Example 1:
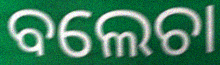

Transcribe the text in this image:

ବଲେଚା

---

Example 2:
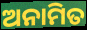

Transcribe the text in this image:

ଅନାମିତ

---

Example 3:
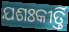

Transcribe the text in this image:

ଯଶଃକୀର୍ତ୍ତି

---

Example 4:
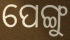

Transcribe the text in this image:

ପେଙ୍ଗୁ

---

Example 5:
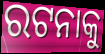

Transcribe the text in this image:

ରଟନାକୁ